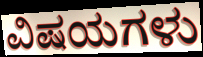
ವಿಷಯಗಳು